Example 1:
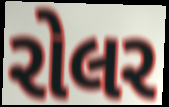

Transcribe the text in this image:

રોલર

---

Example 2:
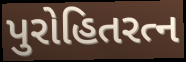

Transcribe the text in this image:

પુરોહિતરત્ન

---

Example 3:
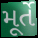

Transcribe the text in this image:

મૂર્તે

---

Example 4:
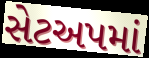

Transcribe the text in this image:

સેટઅપમાં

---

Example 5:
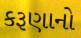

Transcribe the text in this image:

કરૂણાનો